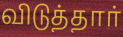
விடுத்தார்